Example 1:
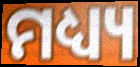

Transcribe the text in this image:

ମଧ୍ୟ୍ୟ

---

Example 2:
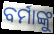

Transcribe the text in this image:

ବର୍ମାଙ୍କୁ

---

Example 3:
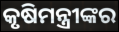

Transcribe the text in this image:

କୃଷିମନ୍ତ୍ରୀଙ୍କର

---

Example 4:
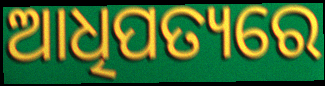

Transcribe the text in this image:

ଆଧିପତ୍ୟରେ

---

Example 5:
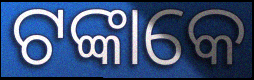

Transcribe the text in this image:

ଟଙ୍କାକେ